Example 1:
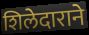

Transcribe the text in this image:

शिलेदाराने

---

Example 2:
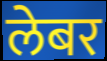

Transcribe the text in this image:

लेबर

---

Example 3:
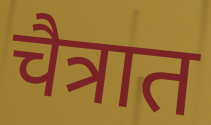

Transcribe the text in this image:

चैत्रात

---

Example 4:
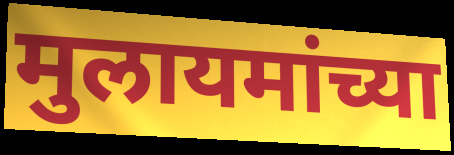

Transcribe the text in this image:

मुलायमांच्या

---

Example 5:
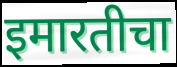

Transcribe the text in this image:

इमारतीचा